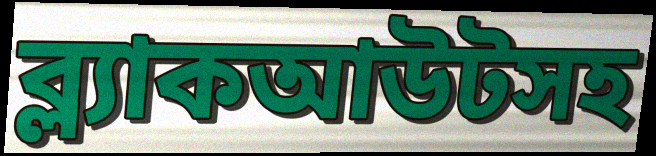
ব্ল্যাকআউটসহ